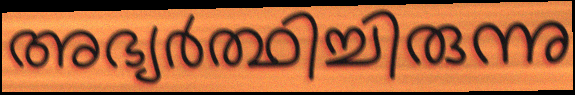
അഭ്യർത്ഥിച്ചിരുന്നു